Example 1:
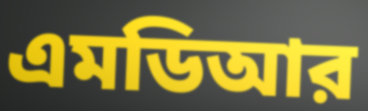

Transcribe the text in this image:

এমডিআর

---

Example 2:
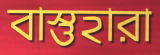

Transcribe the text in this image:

বাস্তুহারা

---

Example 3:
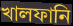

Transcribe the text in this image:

খালফানি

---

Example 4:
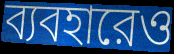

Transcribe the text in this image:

ব্যবহারেও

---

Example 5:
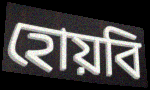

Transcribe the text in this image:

হোয়বি